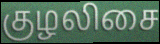
குழலிசை